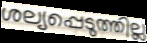
ശല്യപ്പെടുത്തില്ല